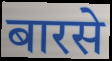
बारसे